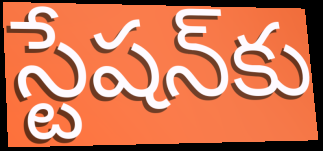
స్టేషన్‍కు